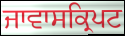
ਜਾਵਾਸਕ੍ਰਿਪਟ